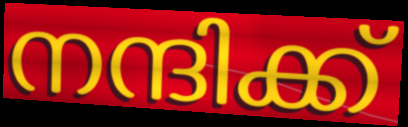
നന്ദിക്ക്